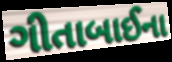
ગીતાબાઈના